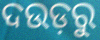
ଦଉଡ଼ରୁ